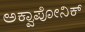
ಅಕ್ವಾಪೋನಿಕ್